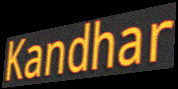
Kandhar